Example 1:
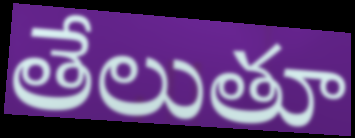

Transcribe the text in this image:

తేలుతూ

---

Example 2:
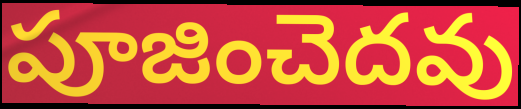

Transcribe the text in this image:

పూజించెదవు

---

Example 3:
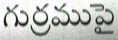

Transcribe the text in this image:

గుర్రముపై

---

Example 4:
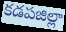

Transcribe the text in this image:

కడపజిల్లా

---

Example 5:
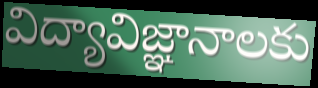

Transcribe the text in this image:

విద్యావిజ్ఞానాలకు